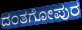
ದಂತಗೋಪುರ